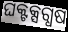
ଘକ୍ଟକ୍ସଗ୍ଧଷ